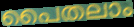
പൈതലാം